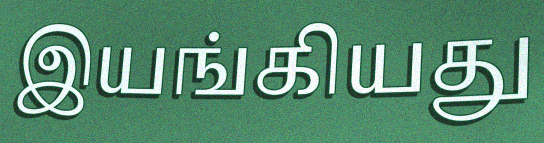
இயங்கியது